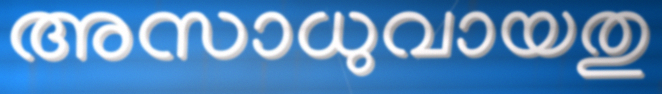
അസാധുവായതു